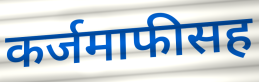
कर्जमाफीसह